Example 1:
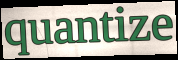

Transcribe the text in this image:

quantize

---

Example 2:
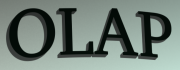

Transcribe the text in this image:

OLAP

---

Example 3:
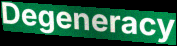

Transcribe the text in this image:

Degeneracy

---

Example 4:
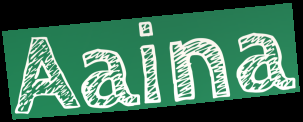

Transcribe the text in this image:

Aaina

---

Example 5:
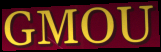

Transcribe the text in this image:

GMOU